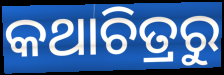
କଥାଚିତ୍ରରୁ